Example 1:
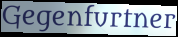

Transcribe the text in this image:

Gegenfurtner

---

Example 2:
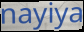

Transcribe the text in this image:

nayiya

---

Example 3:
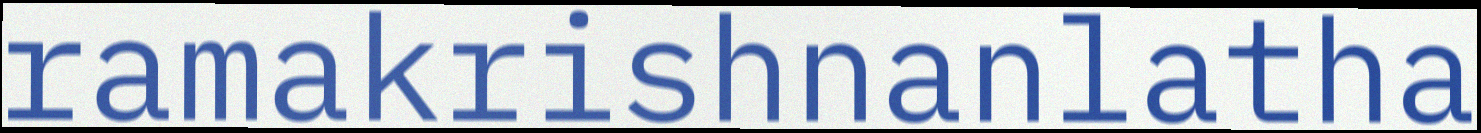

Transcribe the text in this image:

ramakrishnanlatha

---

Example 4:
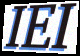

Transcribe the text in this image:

IEI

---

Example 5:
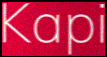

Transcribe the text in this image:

Kapi